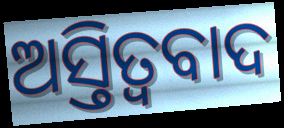
ଅସ୍ତିତ୍ବବାଦ